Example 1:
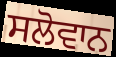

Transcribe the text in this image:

ਸਲੋਵਾਨ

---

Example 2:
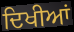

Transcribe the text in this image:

ਦਿਖੀਆਂ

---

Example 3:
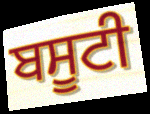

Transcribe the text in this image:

ਬਸੂਟੀ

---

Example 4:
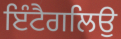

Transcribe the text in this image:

ਇੰਟੈਗਲਿਉ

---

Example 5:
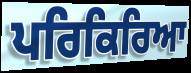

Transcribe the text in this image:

ਪਰਿਕਿਰਿਆ